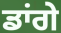
ਡਾਂਗੇ